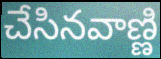
చేసినవాణ్ణి